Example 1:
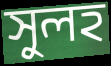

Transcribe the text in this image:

সুলহ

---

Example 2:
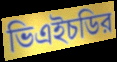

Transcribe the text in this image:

ভিএইচডির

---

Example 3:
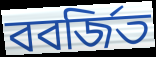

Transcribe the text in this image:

ববর্জিত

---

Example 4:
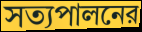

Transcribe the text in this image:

সত্যপালনের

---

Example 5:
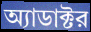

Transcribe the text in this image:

অ্যাডাক্টর